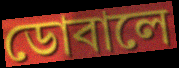
ডোবালে